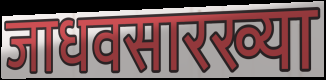
जाधवसारख्या